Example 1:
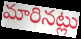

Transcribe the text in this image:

మారినట్లు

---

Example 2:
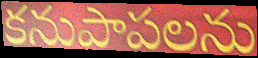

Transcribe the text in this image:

కనుపాపలను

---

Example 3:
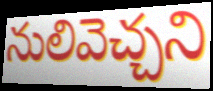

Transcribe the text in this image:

నులివెచ్చని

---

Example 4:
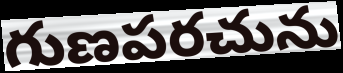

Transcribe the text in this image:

గుణపరచును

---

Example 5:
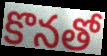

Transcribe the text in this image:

కొనతో